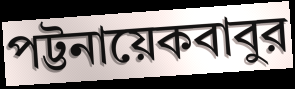
পট্টনায়েকবাবুর